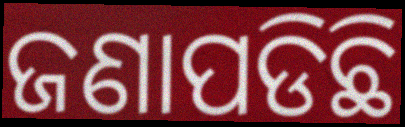
ଜଣାପଡିଛି